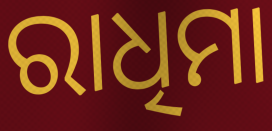
ରାଧିମା